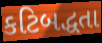
કટિબદ્ધતા